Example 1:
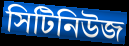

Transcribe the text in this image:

সিটিনিউজ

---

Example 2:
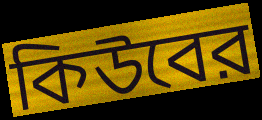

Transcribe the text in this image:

কিউবের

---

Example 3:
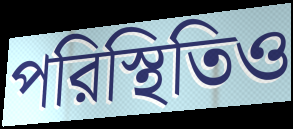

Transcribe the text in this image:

পরিস্থিতিও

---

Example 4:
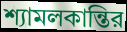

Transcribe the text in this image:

শ্যামলকান্তির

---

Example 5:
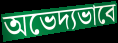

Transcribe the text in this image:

অভেদ্যভাবে